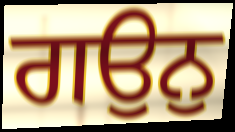
ਗਉਨੁ